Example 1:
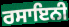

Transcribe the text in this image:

ਰਸਾਇਨੀ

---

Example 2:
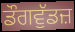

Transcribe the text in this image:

ਡੌਗਵੁੱਡਜ਼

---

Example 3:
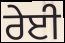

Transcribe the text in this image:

ਰੇਈ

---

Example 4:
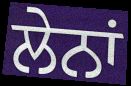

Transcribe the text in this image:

ਲੇਨਾਂ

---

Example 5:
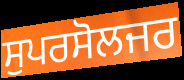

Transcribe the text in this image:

ਸੁਪਰਸੋਲਜਰ